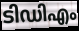
ടിഡിഎം